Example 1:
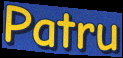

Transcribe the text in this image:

Patru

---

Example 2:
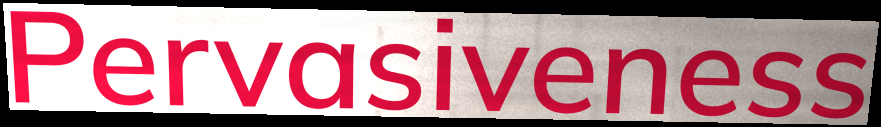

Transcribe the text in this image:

Pervasiveness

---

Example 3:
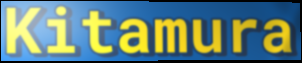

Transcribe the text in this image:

Kitamura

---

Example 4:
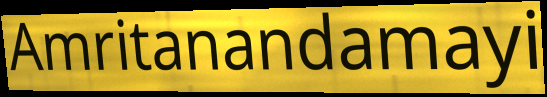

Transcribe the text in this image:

Amritanandamayi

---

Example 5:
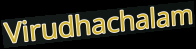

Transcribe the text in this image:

Virudhachalam